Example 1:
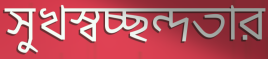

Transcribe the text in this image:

সুখস্বচ্ছন্দতার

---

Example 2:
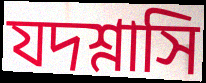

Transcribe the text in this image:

যদশ্নাসি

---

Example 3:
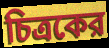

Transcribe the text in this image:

চিত্রকের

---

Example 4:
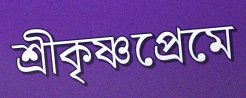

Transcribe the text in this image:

শ্রীকৃষ্ণপ্রেমে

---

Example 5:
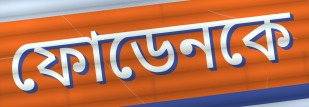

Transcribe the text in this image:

ফোডেনকে